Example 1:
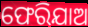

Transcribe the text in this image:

ଫେରିଯାଅ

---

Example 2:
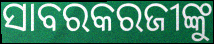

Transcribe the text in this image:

ସାବରକରଜୀଙ୍କୁ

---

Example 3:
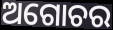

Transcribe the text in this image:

ଅଗୋଚର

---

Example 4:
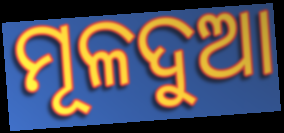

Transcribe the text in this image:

ମୂଳଦୁଆ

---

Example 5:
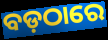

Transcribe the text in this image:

ବଡ଼ଠାରେ